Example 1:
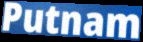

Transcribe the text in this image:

Putnam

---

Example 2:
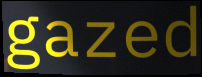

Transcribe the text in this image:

gazed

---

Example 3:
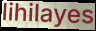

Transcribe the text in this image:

lihilayes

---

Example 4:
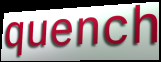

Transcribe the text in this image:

quench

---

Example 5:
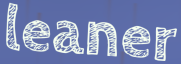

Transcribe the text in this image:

leaner